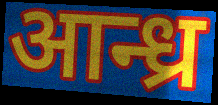
आन्ध्र